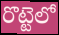
రొట్టెలో